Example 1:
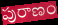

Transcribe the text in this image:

పురాణం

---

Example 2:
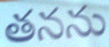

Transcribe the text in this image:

తనను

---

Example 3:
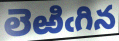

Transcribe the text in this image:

లెఱిఁగిన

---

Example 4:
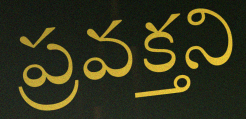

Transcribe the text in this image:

ప్రవక్తని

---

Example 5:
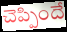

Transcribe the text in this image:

చెప్పిందే